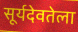
सूर्यदेवतेला